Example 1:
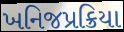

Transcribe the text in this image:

ખનિજપ્રક્રિયા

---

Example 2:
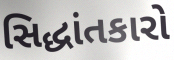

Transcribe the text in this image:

સિદ્ધાંતકારો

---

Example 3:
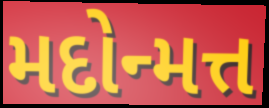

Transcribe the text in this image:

મદોન્મત્ત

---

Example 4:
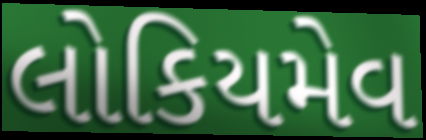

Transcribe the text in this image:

લોકિયમેવ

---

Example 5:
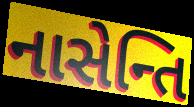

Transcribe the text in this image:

નાસેન્તિ